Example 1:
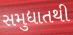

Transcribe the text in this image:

સમુદ્યાતથી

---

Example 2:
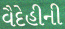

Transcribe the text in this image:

વૈદેહીની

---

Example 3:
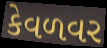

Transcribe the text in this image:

કેવળવર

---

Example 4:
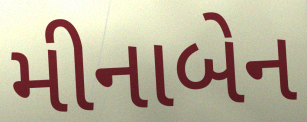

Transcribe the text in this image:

મીનાબેન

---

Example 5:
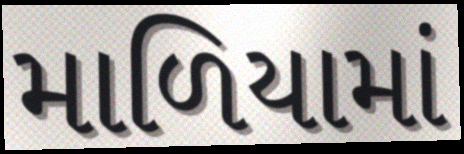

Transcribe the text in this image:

માળિયામાં